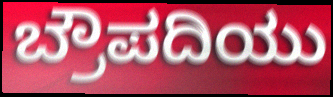
ಬ್ರೌಪದಿಯು